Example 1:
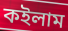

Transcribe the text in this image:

কইলাম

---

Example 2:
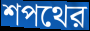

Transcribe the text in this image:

শপথের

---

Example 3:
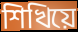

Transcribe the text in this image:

শিখিয়ে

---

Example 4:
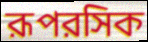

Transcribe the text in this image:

রূপরসিক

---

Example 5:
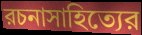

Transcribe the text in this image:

রচনাসাহিত্যের